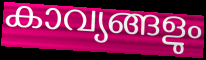
കാവ്യങ്ങളും